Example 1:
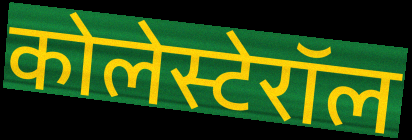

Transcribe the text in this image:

कोलेस्टेरॉल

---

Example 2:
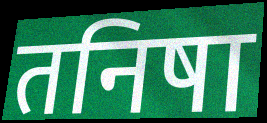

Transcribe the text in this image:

तनिषा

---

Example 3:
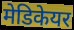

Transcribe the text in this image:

मेडिकेयर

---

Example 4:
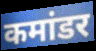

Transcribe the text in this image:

कमांडर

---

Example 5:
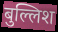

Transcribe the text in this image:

बुल्लिश